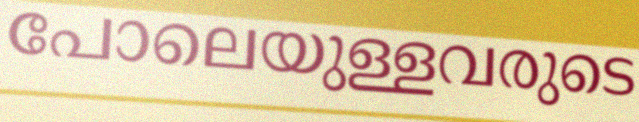
പോലെയുള്ളവരുടെ